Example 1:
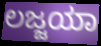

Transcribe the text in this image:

ಲಜ್ಜಯಾ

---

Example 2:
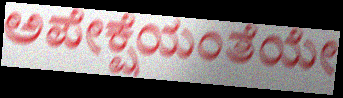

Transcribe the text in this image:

ಅಪೇಕ್ಷೆಯಂತೆಯೇ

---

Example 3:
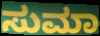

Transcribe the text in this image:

ಸುಮಾ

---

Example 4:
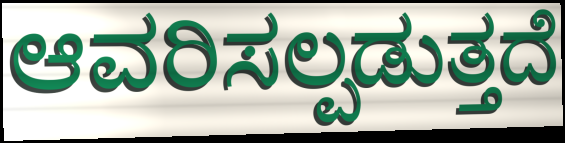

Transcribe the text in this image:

ಆವರಿಸಲ್ಪಡುತ್ತದೆ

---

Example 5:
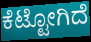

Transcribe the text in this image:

ಕೆಟ್ಟೋಗಿದೆ